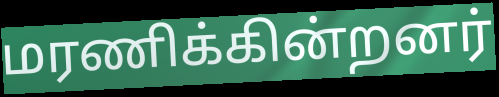
மரணிக்கின்றனர்